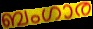
ബംഗാര